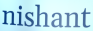
nishant